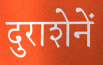
दुराशेनें